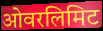
ओवरलिमिट